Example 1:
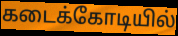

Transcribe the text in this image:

கடைக்கோடியில்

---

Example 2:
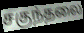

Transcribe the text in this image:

சகுந்தலை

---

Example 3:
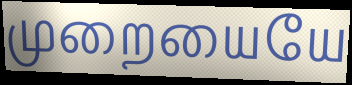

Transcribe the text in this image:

முறையையே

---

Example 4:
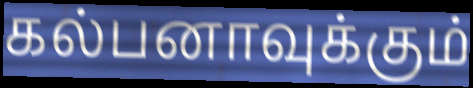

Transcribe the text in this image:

கல்பனாவுக்கும்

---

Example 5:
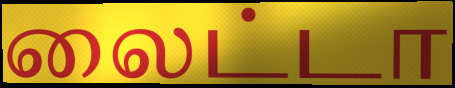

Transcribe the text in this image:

லைட்டா